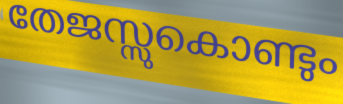
തേജസ്സുകൊണ്ടും